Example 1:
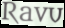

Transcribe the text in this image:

Ravu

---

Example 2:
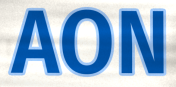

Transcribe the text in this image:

AON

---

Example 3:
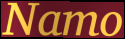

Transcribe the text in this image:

Namo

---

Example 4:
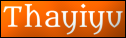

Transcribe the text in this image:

Thayiyu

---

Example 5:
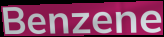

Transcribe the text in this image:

Benzene